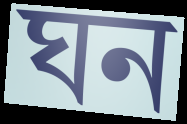
ঘন